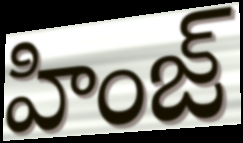
హింజ్